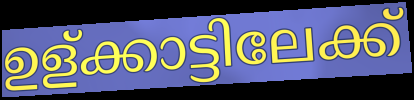
ഉള്ക്കാട്ടിലേക്ക്